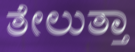
ತೇಲುತ್ತಾ